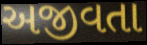
અજીવતા